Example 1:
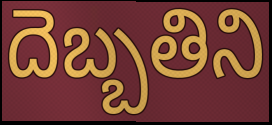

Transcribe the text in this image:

దెబ్బతిని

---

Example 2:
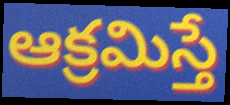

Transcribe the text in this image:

ఆక్రమిస్తే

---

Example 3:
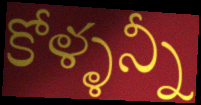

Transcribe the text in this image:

కోళ్ళన్నీ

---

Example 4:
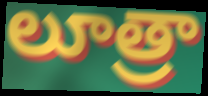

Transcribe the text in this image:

లూత్రా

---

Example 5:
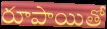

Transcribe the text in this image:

రూపాయితో